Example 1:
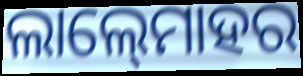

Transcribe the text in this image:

ଲାଲ୍‍ମୋହର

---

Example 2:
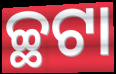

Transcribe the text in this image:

ଚ୍ଛଟା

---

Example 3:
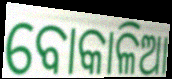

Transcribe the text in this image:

ବୋକାଳିଆ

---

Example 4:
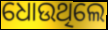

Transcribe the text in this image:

ଧୋଉଥିଲେ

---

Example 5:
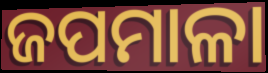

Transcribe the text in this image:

ଜପମାଳା